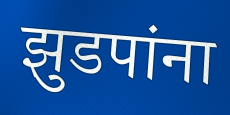
झुडपांना